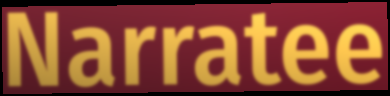
Narratee